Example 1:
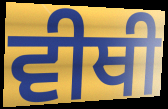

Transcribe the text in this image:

ਵੀਥੀ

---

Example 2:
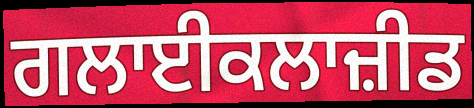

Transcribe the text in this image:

ਗਲਾਈਕਲਾਜ਼ੀਡ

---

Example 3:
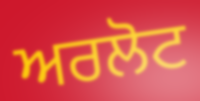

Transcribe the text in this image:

ਅਰਲੋਟ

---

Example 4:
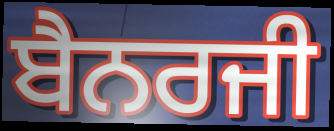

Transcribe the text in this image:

ਬੈਨਰਜੀ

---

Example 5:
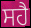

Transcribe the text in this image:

ਸਹੈ